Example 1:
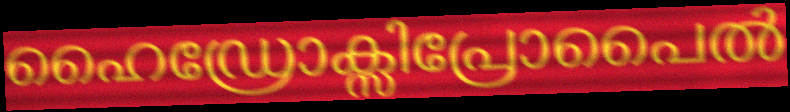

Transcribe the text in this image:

ഹൈഡ്രോക്സിപ്രോപൈൽ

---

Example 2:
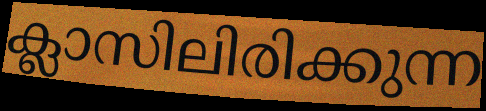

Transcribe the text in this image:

ക്ലാസിലിരിക്കുന്ന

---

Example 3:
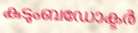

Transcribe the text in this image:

കുടുംബഡോക്ടർ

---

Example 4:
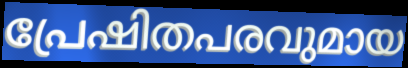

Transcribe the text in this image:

പ്രേഷിതപരവുമായ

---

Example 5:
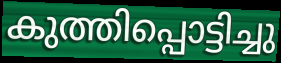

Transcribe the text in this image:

കുത്തിപ്പൊട്ടിച്ചു